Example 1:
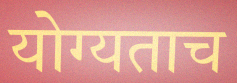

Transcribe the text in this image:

योग्यताच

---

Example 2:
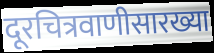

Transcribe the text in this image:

दूरचित्रवाणीसारख्या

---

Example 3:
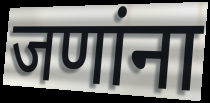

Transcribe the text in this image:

जणांना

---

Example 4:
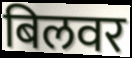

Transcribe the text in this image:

बिलवर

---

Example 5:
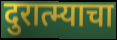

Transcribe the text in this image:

दुरात्म्याचा